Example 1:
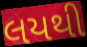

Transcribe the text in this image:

લયથી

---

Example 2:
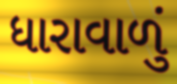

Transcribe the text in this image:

ધારાવાળું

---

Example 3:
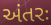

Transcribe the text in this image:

અંતરઃ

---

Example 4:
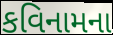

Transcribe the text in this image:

કવિનામના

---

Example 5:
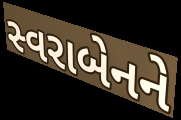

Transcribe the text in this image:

સ્વરાબેનને